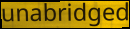
unabridged